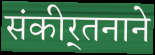
संकीर्तनाने